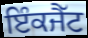
ਇੰਕਜੈੱਟ